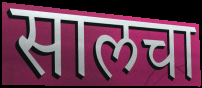
सालचा